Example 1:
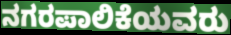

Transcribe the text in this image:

ನಗರಪಾಲಿಕೆಯವರು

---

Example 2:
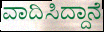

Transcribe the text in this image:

ವಾದಿಸಿದ್ದಾನೆ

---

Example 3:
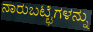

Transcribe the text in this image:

ನಾರುಬಟ್ಟೆಗಳನ್ನು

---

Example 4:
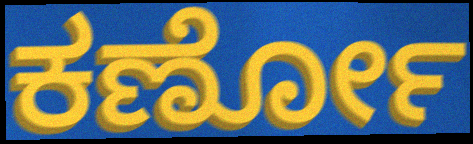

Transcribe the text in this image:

ಕರ್ಣೋ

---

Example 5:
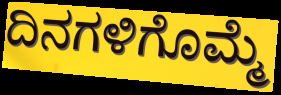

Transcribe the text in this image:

ದಿನಗಳಿಗೊಮ್ಮೆ